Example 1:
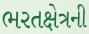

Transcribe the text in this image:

ભરતક્ષેત્રની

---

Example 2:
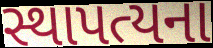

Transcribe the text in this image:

સ્થાપત્યના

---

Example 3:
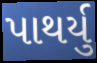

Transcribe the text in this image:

પાથર્યુ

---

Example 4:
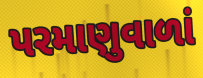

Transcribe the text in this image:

પરમાણુવાળાં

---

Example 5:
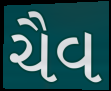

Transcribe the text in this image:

ચૈવ